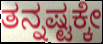
ತನ್ನಷ್ಟಕ್ಕೇ